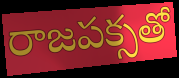
రాజపక్సతో